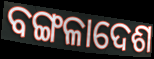
ବଙ୍ଗଳାଦେଶ